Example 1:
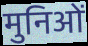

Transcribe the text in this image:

मुनिओं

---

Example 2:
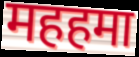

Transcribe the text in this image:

महहमा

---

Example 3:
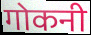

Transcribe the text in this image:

गोकनी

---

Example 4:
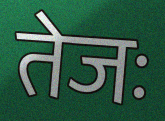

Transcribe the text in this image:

तेजः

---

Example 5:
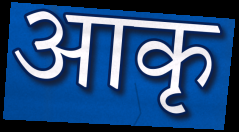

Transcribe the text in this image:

आकृ